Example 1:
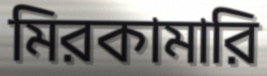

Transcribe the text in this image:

মিরকামারি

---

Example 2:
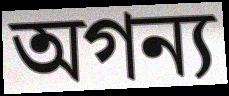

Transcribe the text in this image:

অগন্য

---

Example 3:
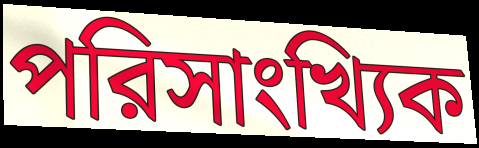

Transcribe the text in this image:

পরিসাংখ্যিক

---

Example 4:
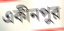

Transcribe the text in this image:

একীনপুর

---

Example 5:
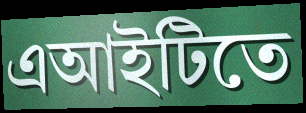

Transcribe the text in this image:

এআইটিতে